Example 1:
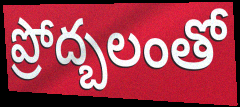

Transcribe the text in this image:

ప్రోద్బలంతో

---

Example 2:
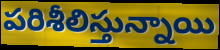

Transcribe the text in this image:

పరిశీలిస్తున్నాయి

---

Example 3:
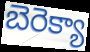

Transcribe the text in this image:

బెరెక్యా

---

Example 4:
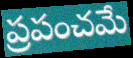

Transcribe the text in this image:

ప్రపంచమే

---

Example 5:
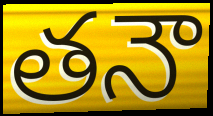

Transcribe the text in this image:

తనౌ